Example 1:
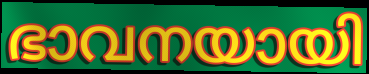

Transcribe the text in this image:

ഭാവനയായി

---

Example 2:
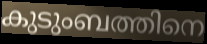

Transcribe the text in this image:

കുടുംബത്തിനെ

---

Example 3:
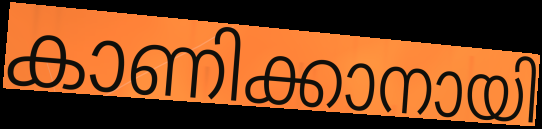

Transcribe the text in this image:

കാണിക്കാനായി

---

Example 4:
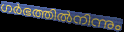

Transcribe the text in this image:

ഗർഭത്തിൽനിന്നും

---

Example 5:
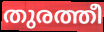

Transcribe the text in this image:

തുരത്തീ